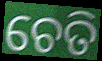
ଚେତି